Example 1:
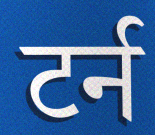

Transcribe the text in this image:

टर्न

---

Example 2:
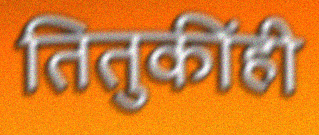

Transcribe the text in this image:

तितुकींही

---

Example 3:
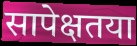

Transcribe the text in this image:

सापेक्षतया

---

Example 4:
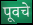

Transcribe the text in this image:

पूवचे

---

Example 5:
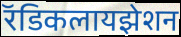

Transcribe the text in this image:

रॅडिकलायझेशन